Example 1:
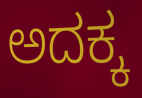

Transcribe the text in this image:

ಅದಕ್ಕ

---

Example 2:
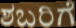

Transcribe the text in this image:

ಶಬರಿಗೆ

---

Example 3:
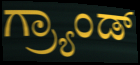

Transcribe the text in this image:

ಗ್ರ್ಯಾಂಡ್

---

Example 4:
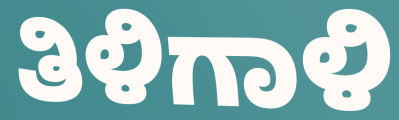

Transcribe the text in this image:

ತಿಳಿಗಾಳಿ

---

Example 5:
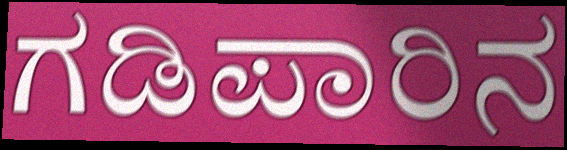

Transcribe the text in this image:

ಗಡಿಪಾರಿನ